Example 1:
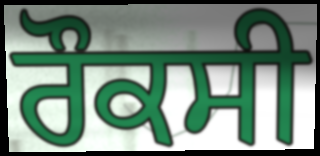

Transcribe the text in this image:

ਰੌਕਸੀ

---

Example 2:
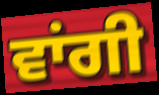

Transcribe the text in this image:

ਵਾਂਗੀ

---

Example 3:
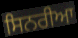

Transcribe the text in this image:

ਸਿਨਰੀਆ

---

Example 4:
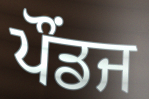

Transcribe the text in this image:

ਪੌਂਡਜ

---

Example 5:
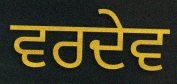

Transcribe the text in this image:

ਵਰਦੇਵ